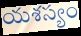
యశస్యం